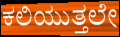
ಕಲಿಯುತ್ತಲೇ